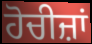
ਹੋਚੀਜ਼ਾਂ